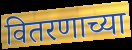
वितरणाच्या